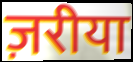
ज़रीया